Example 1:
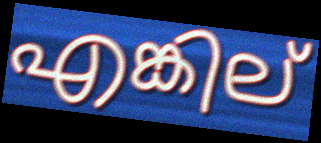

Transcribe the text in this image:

എങ്കില്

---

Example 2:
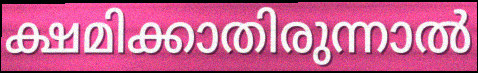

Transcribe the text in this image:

ക്ഷമിക്കാതിരുന്നാൽ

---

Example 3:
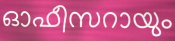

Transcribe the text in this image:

ഓഫീസറായും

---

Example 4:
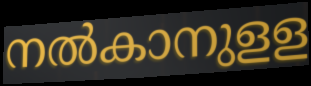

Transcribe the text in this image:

നൽകാനുളള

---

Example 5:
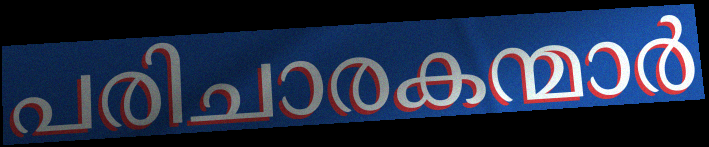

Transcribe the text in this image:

പരിചാരകന്മാർ